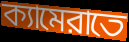
ক্যামেরাতে